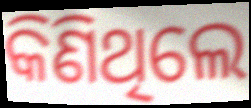
କିଣିଥିଲେ